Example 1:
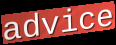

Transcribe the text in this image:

advice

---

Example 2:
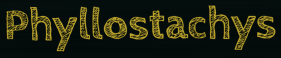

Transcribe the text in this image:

Phyllostachys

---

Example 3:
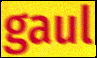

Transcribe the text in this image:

gaul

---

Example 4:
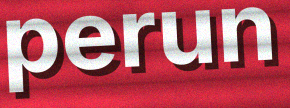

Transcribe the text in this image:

perun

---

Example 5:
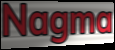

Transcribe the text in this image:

Nagma